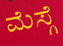
ಮೆಸ್ಗೆ